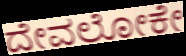
ದೇವಲೋಕೇ